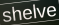
shelve